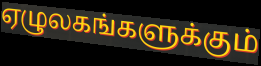
ஏழுலகங்களுக்கும்